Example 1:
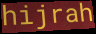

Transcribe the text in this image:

hijrah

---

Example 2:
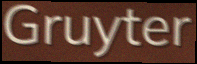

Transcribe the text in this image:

Gruyter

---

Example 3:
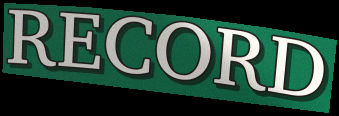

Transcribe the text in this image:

RECORD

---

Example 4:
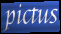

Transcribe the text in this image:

pictus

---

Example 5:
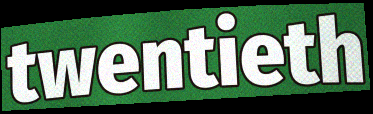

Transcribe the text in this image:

twentieth